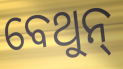
ବେଥୁନ୍